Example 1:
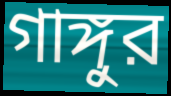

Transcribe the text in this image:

গাঙ্গুর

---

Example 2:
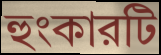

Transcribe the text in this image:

হুংকারটি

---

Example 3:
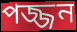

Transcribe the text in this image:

পজ্জন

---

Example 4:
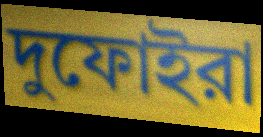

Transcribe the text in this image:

দুফোইরা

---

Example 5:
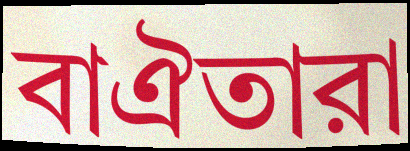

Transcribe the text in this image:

বাঐতারা